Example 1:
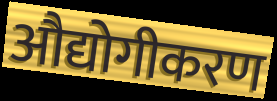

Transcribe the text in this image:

औद्योगीकरण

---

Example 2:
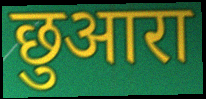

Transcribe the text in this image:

छुआरा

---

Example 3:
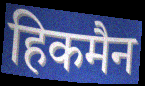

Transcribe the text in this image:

हिकमैन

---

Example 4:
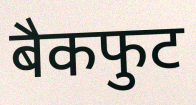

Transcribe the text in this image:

बैकफुट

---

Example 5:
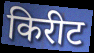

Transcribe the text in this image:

किरीट